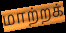
மாற்றக்